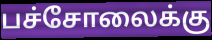
பச்சோலைக்கு